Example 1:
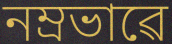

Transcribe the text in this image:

নম্ৰভাৱে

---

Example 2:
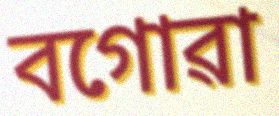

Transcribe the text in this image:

বগোৱা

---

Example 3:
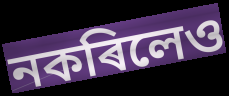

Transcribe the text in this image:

নকৰিলেও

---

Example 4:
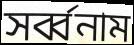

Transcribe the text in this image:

সৰ্ব্বনাম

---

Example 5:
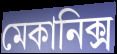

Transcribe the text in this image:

মেকানিক্স